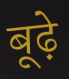
बूढ़े